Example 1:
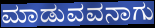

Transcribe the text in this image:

ಮಾಡುವವನಾಗು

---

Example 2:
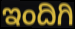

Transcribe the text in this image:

ಇಂದಿಗಿ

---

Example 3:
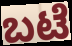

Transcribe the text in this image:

ಬಟೆ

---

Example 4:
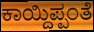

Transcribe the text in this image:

ಕಾಯ್ದಿಪ್ಪಂತೆ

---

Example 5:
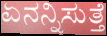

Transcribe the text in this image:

ಏನನ್ನಿಸುತ್ತೆ